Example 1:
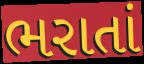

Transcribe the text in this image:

ભરાતાં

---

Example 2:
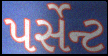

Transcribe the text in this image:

પર્સેન્ટ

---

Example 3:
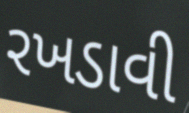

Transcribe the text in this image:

રખડાવી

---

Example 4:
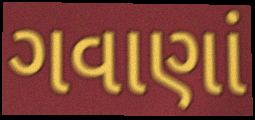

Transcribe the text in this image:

ગવાણાં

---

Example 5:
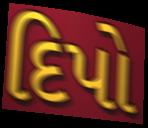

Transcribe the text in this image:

દિપો